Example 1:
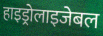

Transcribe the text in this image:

हाइड्रोलाइजेबल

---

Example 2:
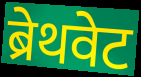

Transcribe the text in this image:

ब्रेथवेट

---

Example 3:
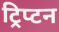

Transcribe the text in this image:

ट्रिप्टन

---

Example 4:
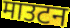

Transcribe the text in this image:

माउटन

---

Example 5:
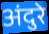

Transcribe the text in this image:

अंदुरे